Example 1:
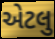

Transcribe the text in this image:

એટલુ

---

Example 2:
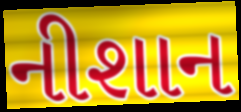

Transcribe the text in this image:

નીશાન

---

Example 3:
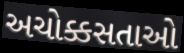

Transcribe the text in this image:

અચોક્કસતાઓ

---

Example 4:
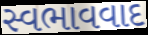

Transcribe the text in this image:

સ્વભાવવાદ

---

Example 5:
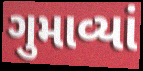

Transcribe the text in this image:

ગુમાવ્યાં